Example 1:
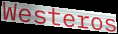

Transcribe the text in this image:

Westeros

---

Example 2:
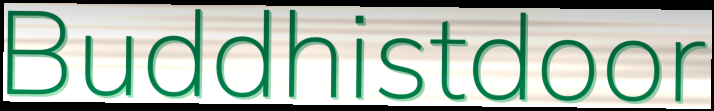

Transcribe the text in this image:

Buddhistdoor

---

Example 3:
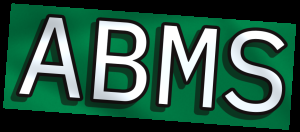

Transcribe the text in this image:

ABMS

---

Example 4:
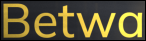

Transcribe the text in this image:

Betwa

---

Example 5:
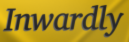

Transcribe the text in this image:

Inwardly